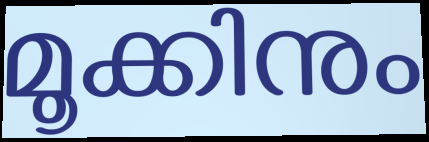
മൂക്കിനും